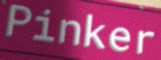
Pinker